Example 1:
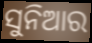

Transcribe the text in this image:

ସୁନିଆର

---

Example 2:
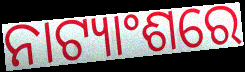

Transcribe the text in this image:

ନାଟ୍ୟାଂଶରେ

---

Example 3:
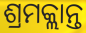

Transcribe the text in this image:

ଶ୍ରମକ୍ଲାନ୍ତ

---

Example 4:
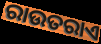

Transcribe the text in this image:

ରାଉତରାଏ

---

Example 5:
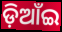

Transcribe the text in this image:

ଡ଼ିଆଁଇ